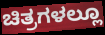
ಚಿತ್ರಗಳಲ್ಲೂ